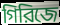
গিরিজে